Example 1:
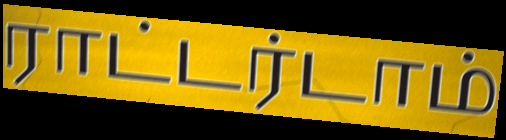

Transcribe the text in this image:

ராட்டர்டாம்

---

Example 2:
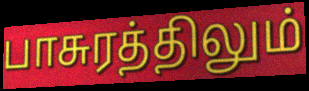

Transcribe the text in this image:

பாசுரத்திலும்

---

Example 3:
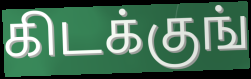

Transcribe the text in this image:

கிடக்குங்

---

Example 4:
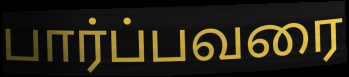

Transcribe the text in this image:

பார்ப்பவரை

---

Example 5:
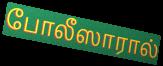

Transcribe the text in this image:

போலீஸாரால்